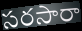
సరసారా